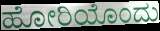
ಹೋರಿಯೊಂದು